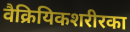
वैक्रियिकशरीरका